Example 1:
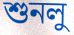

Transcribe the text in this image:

শুনলু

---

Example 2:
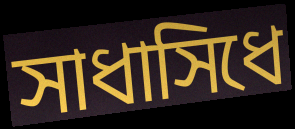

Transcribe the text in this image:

সাধাসিধে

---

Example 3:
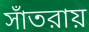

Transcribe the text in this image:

সাঁতরায়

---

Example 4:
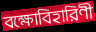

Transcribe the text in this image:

বক্ষোবিহারিণী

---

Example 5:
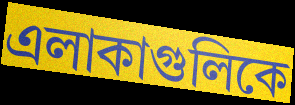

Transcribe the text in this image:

এলাকাগুলিকে